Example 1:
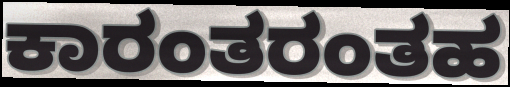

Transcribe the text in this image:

ಕಾರಂತರಂತಹ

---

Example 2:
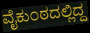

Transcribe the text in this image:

ವೈಕುಂಠದಲ್ಲಿದ್ದ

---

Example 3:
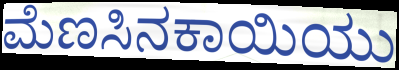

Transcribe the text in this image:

ಮೆಣಸಿನಕಾಯಿಯು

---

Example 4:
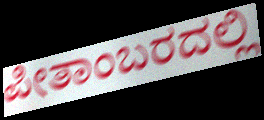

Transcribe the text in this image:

ಪೀತಾಂಬರದಲ್ಲಿ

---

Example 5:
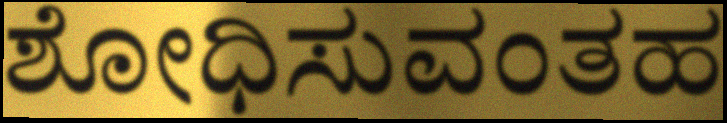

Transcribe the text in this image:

ಶೋಧಿಸುವಂತಹ